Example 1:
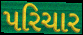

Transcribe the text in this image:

પરિચાર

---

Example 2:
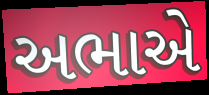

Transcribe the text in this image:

અભાએ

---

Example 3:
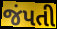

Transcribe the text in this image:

જંપતી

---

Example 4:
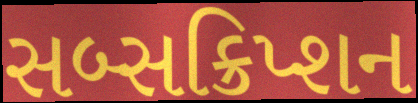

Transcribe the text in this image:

સબ્સક્રિપ્શન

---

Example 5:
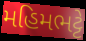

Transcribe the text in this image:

મહિમભટ્ટે